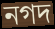
নগদ